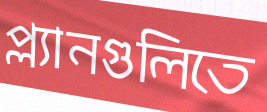
প্ল্যানগুলিতে